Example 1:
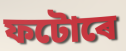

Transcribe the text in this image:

ফটোৰে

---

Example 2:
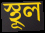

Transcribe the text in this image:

স্থূল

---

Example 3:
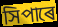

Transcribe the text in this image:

সিপাৰে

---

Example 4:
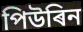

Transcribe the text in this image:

পিউৰিন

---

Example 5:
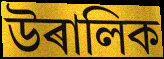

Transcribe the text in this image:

উৰালিক